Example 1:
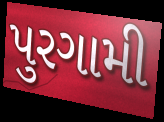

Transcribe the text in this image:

પુરગામી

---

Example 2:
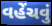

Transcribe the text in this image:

વહેંચવું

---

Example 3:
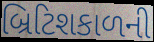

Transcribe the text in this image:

બ્રિટિશકાળની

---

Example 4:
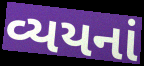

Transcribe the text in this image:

વ્યયનાં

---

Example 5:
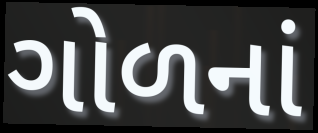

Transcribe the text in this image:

ગોળનાં